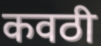
कवठी